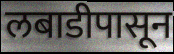
लबाडीपासून